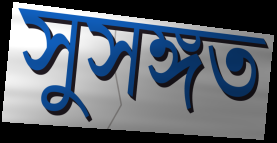
সুসঙ্গত